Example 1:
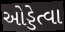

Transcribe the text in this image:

ઓડ્ડેત્વા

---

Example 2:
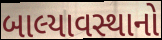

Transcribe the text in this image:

બાલ્યાવસ્થાનો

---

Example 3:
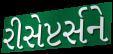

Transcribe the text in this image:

રીસેપ્ટર્સને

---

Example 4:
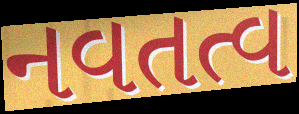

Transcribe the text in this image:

નવતત્વ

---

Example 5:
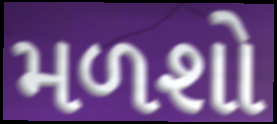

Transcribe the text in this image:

મળશો